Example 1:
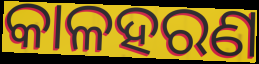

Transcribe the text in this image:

କାଳହରଣ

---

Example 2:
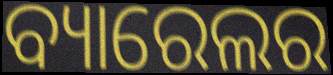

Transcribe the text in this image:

ବ୍ୟାରେଲର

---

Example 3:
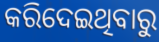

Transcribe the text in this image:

କରିଦେଇଥିବାରୁ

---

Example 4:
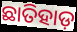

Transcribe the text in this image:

ଛାତିହାଡ଼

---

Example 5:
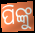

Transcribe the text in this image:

ପିଙ୍କୁ